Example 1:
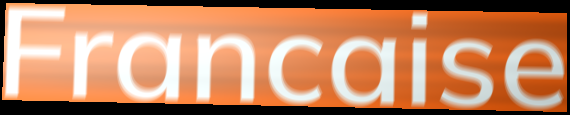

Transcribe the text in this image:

Francaise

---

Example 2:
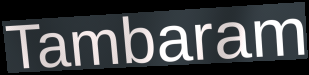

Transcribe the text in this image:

Tambaram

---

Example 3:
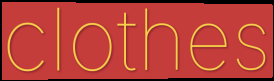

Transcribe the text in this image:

clothes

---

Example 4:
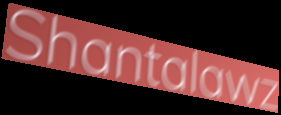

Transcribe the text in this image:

Shantalawz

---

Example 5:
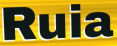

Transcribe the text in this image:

Ruia